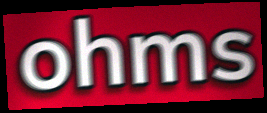
ohms